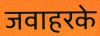
जवाहरके